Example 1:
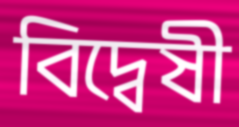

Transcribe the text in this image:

বিদ্বেষী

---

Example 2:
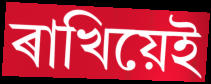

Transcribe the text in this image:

ৰাখিয়েই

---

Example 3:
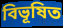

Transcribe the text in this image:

বিভূষিত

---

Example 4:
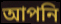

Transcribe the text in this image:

আপনি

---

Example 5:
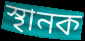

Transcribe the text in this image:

স্থানক